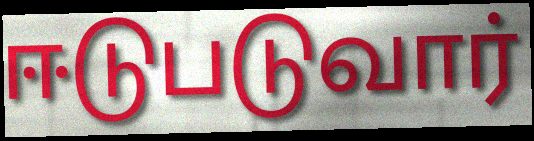
ஈடுபடுவார்